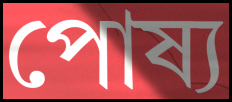
পোষ্য